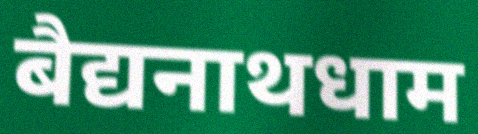
बैद्यनाथधाम